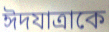
ঈদযাত্রাকে